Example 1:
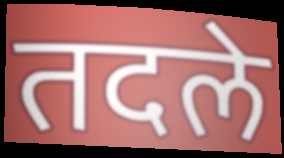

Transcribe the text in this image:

तदले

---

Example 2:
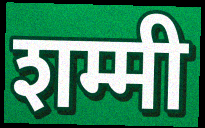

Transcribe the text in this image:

शम्मी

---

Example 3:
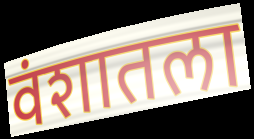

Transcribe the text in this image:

वंशातला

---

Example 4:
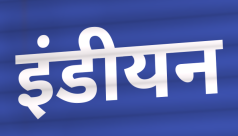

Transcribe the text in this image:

इंडीयन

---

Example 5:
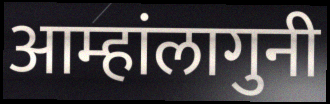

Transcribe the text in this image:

आम्हांलागुनी